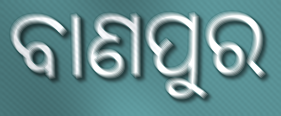
ବାଣପୁର